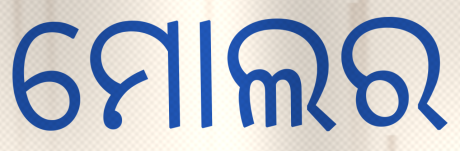
ମୋଲର